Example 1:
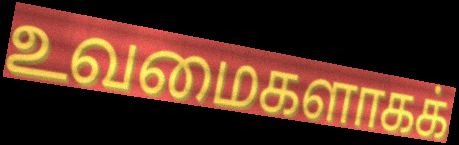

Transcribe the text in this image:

உவமைகளாகக்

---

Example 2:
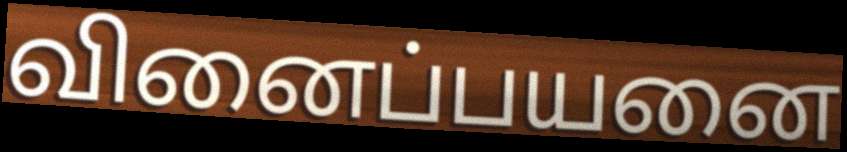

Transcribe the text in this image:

வினைப்பயனை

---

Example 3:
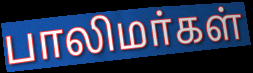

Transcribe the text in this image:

பாலிமர்கள்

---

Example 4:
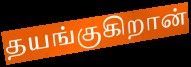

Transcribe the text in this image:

தயங்குகிறான்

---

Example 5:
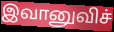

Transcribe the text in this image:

இவானுவிச்